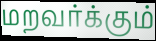
மறவர்க்கும்